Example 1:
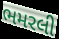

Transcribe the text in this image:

ભમરલી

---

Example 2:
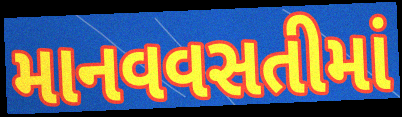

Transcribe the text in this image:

માનવવસતીમાં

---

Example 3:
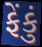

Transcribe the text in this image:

ફેંકું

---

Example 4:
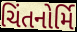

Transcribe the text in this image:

ચિંતનોર્મિ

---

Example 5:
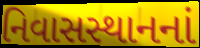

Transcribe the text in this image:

નિવાસસ્થાનનાં